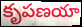
కృపణయా